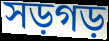
সড়গড়